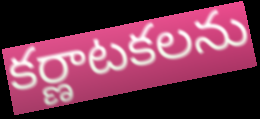
కర్ణాటకలను